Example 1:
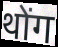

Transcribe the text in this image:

थोंग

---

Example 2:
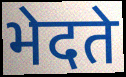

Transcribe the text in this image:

भेदते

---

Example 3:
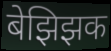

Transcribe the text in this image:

बेझिझक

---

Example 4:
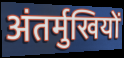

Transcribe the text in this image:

अंतर्मुखियों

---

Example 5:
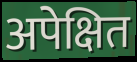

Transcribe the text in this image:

अपेक्षित